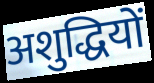
अशुद्धियों